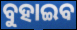
ବୁହାଇବ